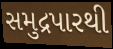
સમુદ્રપારથી